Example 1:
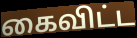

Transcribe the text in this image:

கைவிட்ட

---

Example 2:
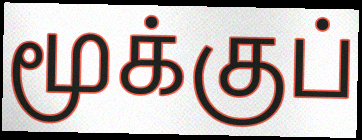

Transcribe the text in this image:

மூக்குப்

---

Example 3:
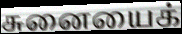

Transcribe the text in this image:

சுனையைக்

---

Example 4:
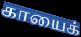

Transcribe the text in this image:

காயைக்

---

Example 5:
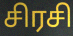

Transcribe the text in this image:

சிரசி